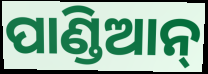
ପାଣ୍ଡିଆନ୍